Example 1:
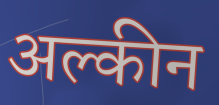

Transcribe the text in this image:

अल्कीन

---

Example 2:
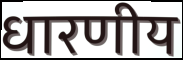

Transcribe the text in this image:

धारणीय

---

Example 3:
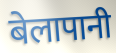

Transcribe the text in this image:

बेलापानी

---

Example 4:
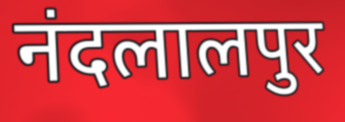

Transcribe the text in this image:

नंदलालपुर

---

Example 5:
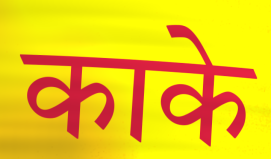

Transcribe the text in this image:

काके